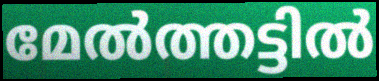
മേൽത്തട്ടിൽ